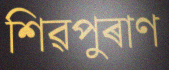
শিৱপুৰাণ